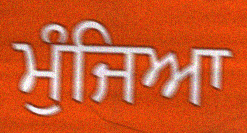
ਮੁੰਜਿਆ